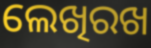
ଲେଖିରଖ